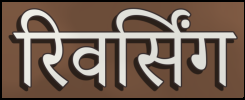
रिवर्सिंग